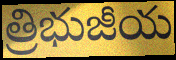
త్రిభుజీయ